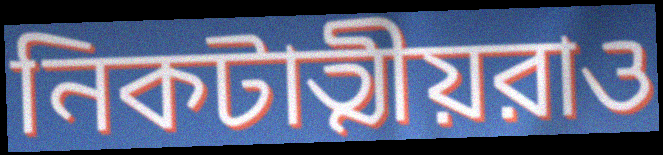
নিকটাত্মীয়রাও